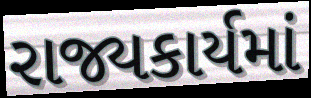
રાજ્યકાર્યમાં